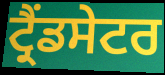
ਟ੍ਰੈਂਡਸੇਟਰ